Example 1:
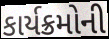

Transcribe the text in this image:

કાર્યક્રમોની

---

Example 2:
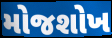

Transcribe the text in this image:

મોજશોખ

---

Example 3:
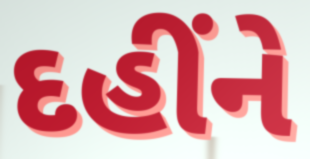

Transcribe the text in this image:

દહીંને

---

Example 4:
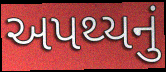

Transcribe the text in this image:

અપથ્યનું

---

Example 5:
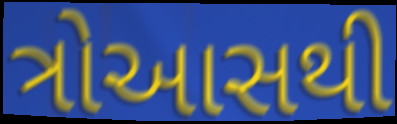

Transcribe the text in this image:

ત્રોઆસથી